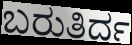
ಬರುತಿರ್ದ